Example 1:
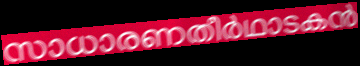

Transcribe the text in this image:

സാധാരണതീർഥാടകൻ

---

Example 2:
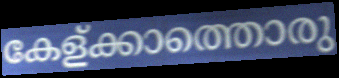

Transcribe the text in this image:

കേള്ക്കാത്തൊരു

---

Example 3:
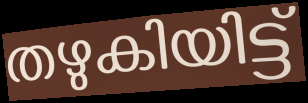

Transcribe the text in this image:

തഴുകിയിട്ട്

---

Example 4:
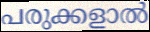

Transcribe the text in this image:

പരുക്കളാൽ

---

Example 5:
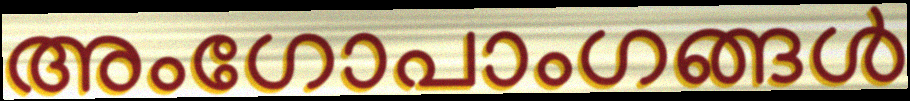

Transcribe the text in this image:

അംഗോപാംഗങ്ങൾ